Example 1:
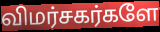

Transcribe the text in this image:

விமர்சகர்களே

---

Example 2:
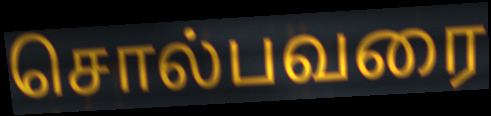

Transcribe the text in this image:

சொல்பவரை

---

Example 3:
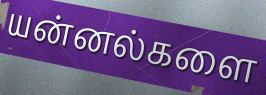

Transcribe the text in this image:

யன்னல்களை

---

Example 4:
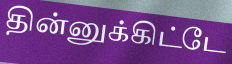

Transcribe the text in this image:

தின்னுக்கிட்டே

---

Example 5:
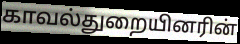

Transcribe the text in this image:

காவல்துறையினரின்